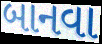
બાનવા